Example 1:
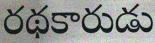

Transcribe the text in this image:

రథకారుడు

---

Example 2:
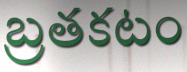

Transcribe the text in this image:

బ్రతకటం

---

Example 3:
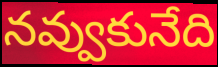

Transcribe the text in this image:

నవ్వుకునేది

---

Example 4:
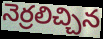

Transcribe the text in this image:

నెర్రలిచ్చిన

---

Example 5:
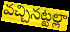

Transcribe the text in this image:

వచ్చినట్టల్లా